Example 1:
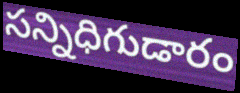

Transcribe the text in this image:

సన్నిధిగుడారం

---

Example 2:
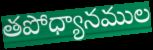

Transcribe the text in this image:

తపోధ్యానముల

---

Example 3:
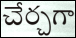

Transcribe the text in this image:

చేర్చగా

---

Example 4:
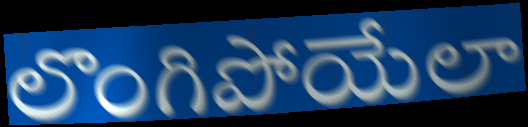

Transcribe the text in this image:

లొంగిపోయేలా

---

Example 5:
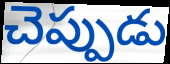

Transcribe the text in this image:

చెప్పుడు